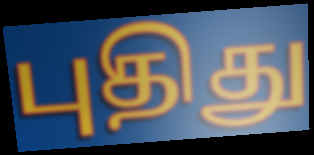
புதிது